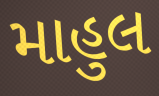
માહુલ